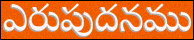
ఎరుపుదనము